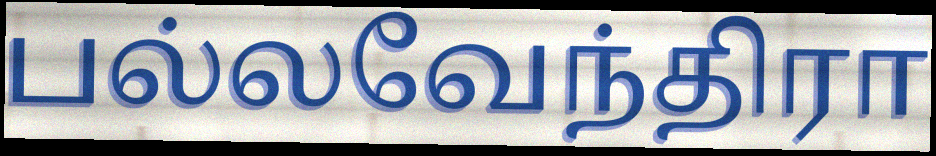
பல்லவேந்திரா